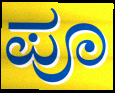
ಪೂ